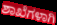
ಶಾಖೆಗಳಾಗಿ